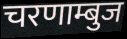
चरणाम्बुज